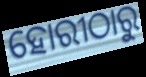
ହୋରୀଠାରୁ